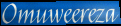
Omuweereza